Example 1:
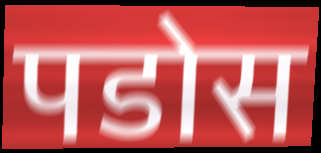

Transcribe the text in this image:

पडोस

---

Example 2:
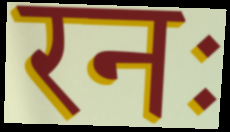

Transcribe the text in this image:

रनः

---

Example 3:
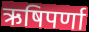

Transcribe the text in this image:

ऋषिपर्णा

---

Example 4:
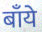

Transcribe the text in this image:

बाँये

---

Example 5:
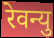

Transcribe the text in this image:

रेवन्यु